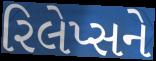
રિલેપ્સને